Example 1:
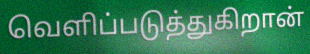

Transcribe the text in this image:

வெளிப்படுத்துகிறான்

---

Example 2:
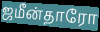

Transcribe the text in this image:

ஜமீன்தாரோ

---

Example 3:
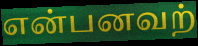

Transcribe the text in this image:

என்பனவற்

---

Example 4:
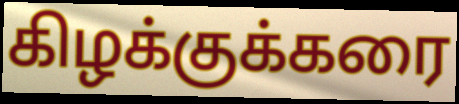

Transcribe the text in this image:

கிழக்குக்கரை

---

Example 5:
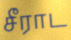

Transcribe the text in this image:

சீராட